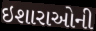
ઇશારાઓની